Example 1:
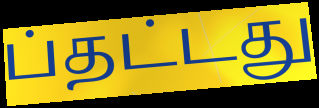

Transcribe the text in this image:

ப்தட்டது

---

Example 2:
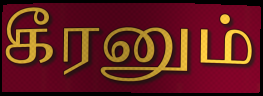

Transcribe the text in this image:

கீரனும்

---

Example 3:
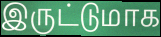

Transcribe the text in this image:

இருட்டுமாக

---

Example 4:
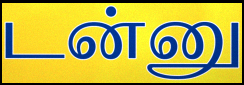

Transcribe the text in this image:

டன்னு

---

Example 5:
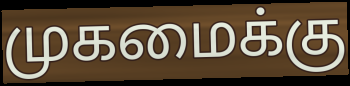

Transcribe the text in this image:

முகமைக்கு